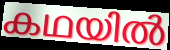
കഥയിൽ